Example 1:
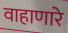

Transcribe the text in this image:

वाहाणारे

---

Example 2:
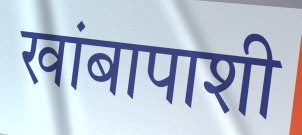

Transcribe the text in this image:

खांबापाशी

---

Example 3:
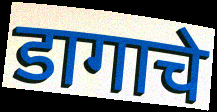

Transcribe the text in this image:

डागाचे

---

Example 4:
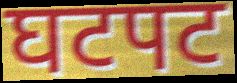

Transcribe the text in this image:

घटपट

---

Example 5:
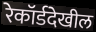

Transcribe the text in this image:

रेकॉर्डदेखील